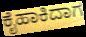
ಕೈಹಾಕಿದಾಗ